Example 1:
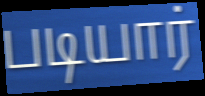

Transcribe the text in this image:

படியார்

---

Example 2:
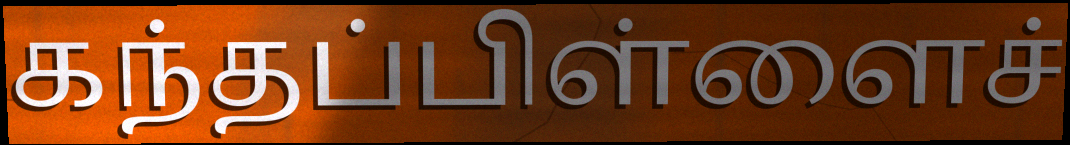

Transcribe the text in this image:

கந்தப்பிள்ளைச்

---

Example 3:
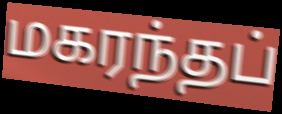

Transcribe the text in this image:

மகரந்தப்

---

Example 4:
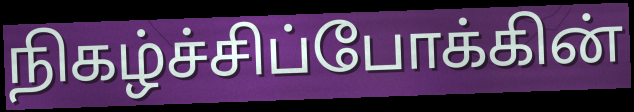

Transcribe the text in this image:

நிகழ்ச்சிப்போக்கின்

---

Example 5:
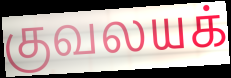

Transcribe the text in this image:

குவலயக்